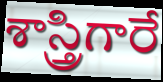
శాస్త్రిగారే